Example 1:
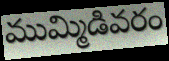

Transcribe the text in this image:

ముమ్మిడివరం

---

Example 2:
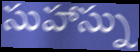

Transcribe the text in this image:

సుహాస్ను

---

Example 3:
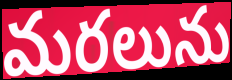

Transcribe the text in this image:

మరలును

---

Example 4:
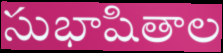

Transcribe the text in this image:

సుభాషితాల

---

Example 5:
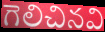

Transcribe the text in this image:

గెలిచినవి